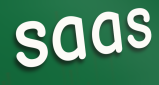
saas